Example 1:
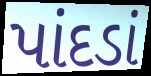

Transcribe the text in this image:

પાંદડાં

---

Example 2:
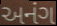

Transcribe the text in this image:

અનંગ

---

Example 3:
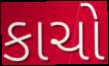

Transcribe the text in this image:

કાચો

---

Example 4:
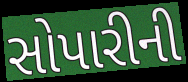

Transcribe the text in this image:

સોપારીની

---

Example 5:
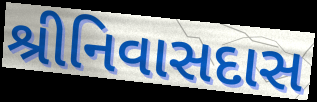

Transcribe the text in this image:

શ્રીનિવાસદાસ